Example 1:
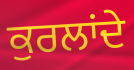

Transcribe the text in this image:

ਕੁਰਲਾਂਦੇ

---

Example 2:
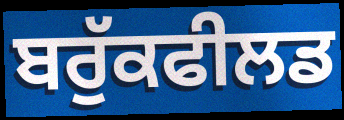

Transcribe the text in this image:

ਬਰੁੱਕਫੀਲਡ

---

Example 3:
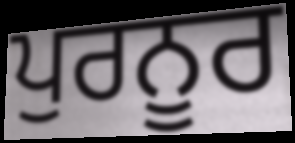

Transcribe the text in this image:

ਪੁਰਨੂਰ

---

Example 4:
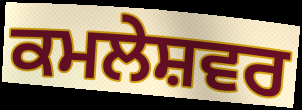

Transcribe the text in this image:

ਕਮਲੇਸ਼ਵਰ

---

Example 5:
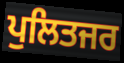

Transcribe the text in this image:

ਪੁਲਿਤਜਰ